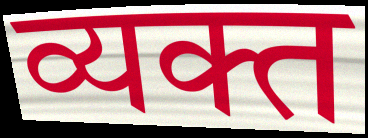
व्यक्त